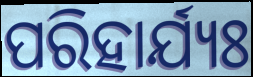
ପରିହାର୍ଯ୍ୟଃ